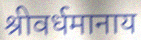
श्रीवर्धमानाय